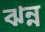
ঝন্ন